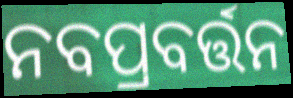
ନବପ୍ରବର୍ତ୍ତନ